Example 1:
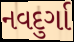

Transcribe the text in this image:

નવદુર્ગા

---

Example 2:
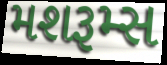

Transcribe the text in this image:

મશરૂમ્સ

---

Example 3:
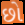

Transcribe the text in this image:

છો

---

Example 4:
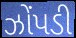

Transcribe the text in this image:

ઝોંપડી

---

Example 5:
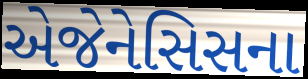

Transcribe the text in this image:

એજેનેસિસના